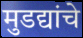
मुडद्यांचे